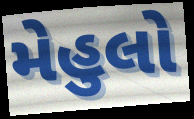
મેહુલો